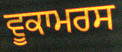
ਵੂਕਾਮਰਸ